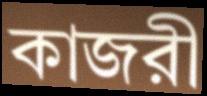
কাজরী